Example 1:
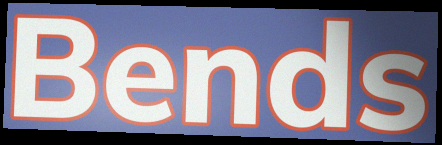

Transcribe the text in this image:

Bends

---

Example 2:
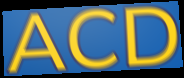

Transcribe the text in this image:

ACD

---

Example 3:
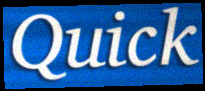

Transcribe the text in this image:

Quick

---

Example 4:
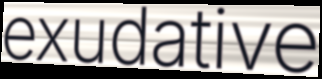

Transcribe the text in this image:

exudative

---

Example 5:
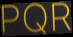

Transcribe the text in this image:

PQR